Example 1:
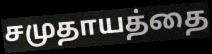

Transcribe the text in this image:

சமுதாயத்தை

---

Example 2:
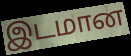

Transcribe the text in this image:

இடமான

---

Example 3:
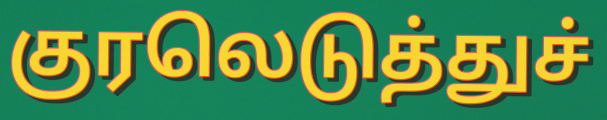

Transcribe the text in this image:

குரலெடுத்துச்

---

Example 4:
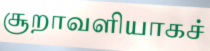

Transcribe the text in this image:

சூறாவளியாகச்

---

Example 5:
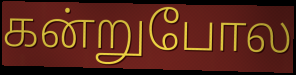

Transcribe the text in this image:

கன்றுபோல